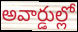
అవార్డుల్లో